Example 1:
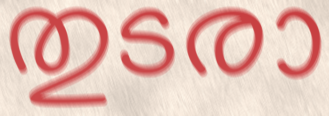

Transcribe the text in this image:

തുടരാ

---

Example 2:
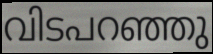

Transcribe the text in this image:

വിടപറഞ്ഞു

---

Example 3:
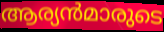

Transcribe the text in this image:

ആര്യൻമാരുടെ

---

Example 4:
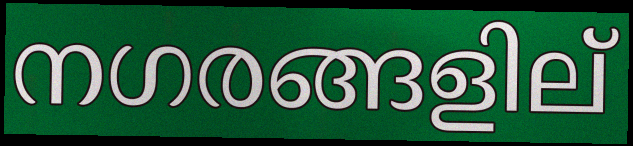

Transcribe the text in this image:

നഗരങ്ങളില്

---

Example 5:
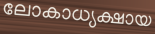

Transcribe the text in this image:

ലോകാധ്യക്ഷായ